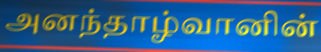
அனந்தாழ்வானின்